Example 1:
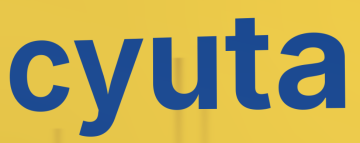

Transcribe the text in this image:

cyuta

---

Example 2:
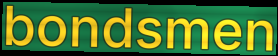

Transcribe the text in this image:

bondsmen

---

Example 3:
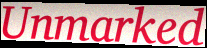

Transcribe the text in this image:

Unmarked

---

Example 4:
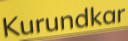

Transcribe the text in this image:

Kurundkar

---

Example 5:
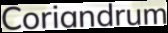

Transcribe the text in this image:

Coriandrum